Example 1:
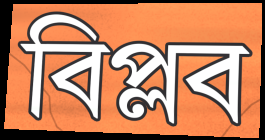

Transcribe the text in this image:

বিপ্লব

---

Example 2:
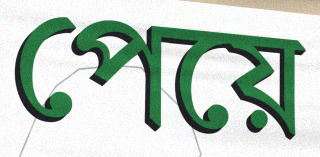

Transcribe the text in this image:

পেয়ে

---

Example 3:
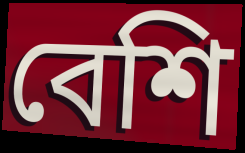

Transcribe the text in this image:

বেশি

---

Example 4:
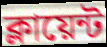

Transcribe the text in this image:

ক্লায়েন্ট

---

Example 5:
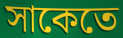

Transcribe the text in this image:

সাকেতে